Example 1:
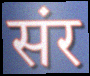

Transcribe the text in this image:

संर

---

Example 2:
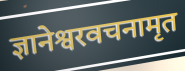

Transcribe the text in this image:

ज्ञानेश्वरवचनामृत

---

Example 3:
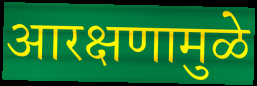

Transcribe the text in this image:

आरक्षणामुळे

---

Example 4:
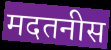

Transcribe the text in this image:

मदतनीस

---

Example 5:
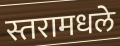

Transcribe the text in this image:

स्तरामधले